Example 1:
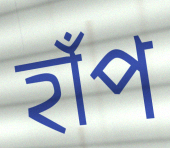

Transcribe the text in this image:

হাঁপ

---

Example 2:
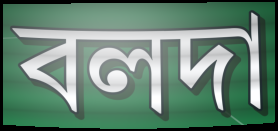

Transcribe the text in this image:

বলদা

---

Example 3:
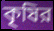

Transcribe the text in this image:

কৃষির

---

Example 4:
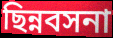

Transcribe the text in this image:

ছিন্নবসনা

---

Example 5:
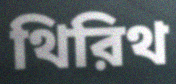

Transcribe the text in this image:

থিরিথ